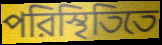
পরিস্থিতিতে